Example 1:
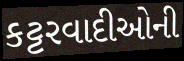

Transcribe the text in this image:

કટ્ટરવાદીઓની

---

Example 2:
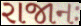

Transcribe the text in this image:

રાજાનઃ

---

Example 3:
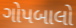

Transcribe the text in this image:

ગોપબાલો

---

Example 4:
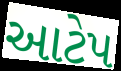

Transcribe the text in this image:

આટેપ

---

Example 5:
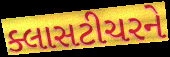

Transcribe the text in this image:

ક્લાસટીચરને